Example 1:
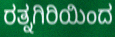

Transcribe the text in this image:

ರತ್ನಗಿರಿಯಿಂದ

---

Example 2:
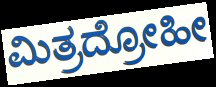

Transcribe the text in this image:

ಮಿತ್ರದ್ರೋಹೀ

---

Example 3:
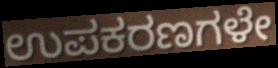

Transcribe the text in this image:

ಉಪಕರಣಗಳೇ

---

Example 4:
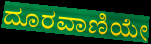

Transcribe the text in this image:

ದೂರವಾಣಿಯೇ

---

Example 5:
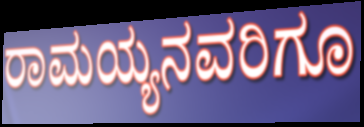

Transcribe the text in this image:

ರಾಮಯ್ಯನವರಿಗೂ